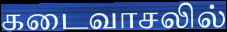
கடைவாசலில்